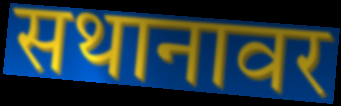
सथानावर